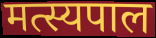
मत्स्यपाल